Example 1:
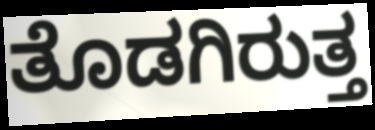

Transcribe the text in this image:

ತೊಡಗಿರುತ್ತ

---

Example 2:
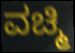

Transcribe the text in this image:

ವಚ್ಮಿ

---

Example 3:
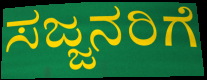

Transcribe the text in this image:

ಸಜ್ಜನರಿಗೆ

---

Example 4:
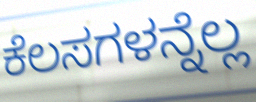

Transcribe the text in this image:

ಕೆಲಸಗಳನ್ನೆಲ್ಲ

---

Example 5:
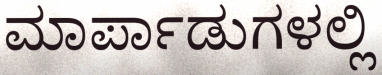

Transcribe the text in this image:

ಮಾರ್ಪಾಡುಗಳಲ್ಲಿ